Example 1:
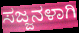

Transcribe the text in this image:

ಸಜ್ಜನಳಾಗಿ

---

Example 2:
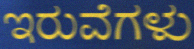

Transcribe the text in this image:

ಇರುವೆಗಳು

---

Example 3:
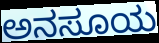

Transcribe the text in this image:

ಅನಸೂಯ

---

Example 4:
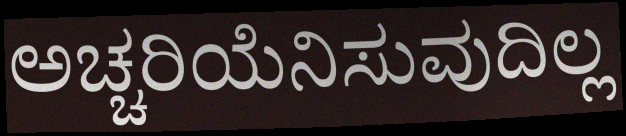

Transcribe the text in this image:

ಅಚ್ಚರಿಯೆನಿಸುವುದಿಲ್ಲ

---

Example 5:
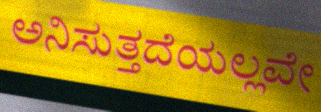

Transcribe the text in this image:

ಅನಿಸುತ್ತದೆಯಲ್ಲವೇ